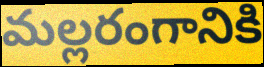
మల్లరంగానికి